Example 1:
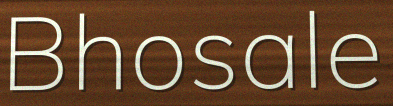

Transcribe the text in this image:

Bhosale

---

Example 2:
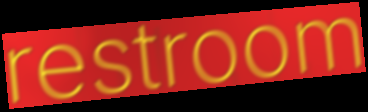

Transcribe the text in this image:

restroom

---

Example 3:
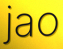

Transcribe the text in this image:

jao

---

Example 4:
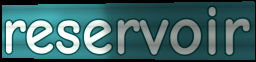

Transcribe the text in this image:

reservoir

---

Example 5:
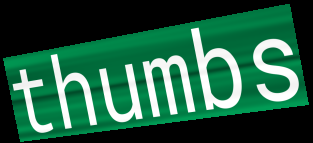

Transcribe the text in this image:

thumbs